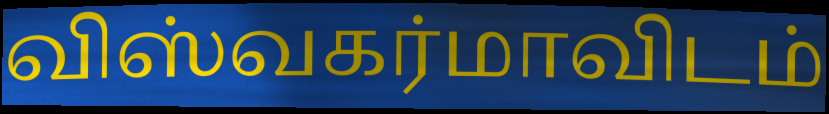
விஸ்வகர்மாவிடம்